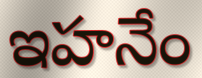
ఇహనేం